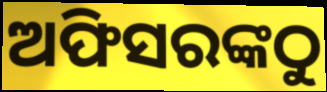
ଅଫିସରଙ୍କଠୁ